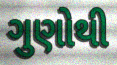
ગુણોથી